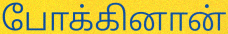
போக்கினான்